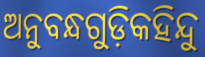
ଅନୁବନ୍ଧଗୁଡ଼ିକହିନ୍ଦୁ